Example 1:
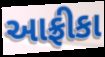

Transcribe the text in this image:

આફ્રીકા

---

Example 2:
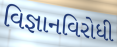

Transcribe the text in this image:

વિજ્ઞાનવિરોધી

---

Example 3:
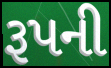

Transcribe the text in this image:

રૂપની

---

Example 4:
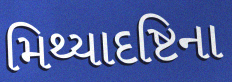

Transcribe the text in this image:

મિથ્યાદષ્ટિના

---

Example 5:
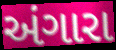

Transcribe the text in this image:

અંગારા